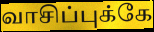
வாசிப்புக்கே